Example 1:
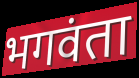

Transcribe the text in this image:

भगवंता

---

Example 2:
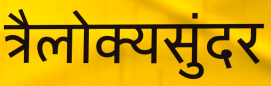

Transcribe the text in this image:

त्रैलोक्यसुंदर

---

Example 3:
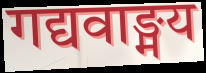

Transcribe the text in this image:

गद्यवाङ्मय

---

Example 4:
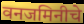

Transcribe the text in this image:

वनजमिनीचे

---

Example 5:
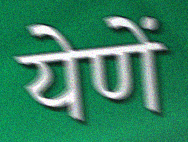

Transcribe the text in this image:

येणें